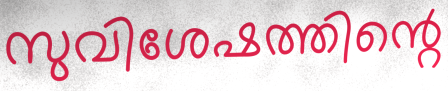
സുവിശേഷത്തിന്റെ